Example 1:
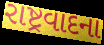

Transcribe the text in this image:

રાષ્ટ્રવાદના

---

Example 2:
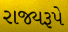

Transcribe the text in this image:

રાજ્યરૂપે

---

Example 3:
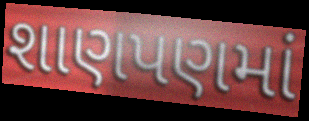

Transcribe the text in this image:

શાણપણમાં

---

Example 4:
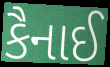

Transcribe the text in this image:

કૈનાઈ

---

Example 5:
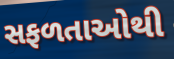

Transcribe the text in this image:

સફળતાઓથી